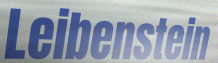
Leibenstein